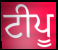
ਟੀਪੂ